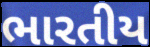
ભારતીય